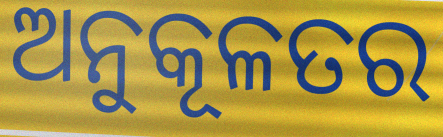
ଅନୁକୂଳତର